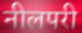
नीलपरी